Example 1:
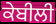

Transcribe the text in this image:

ਕੇਬੀਲੀ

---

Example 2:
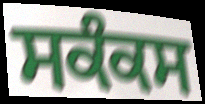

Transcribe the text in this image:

ਸਕੰਕਸ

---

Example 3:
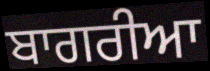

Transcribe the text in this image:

ਬਾਗਰੀਆ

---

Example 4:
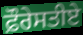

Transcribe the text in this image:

ਫ਼ੌਰੇਸਤੀਏ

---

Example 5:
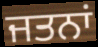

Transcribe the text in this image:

ਜਤਨਾਂ